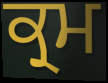
ਕ੍ਰਮ